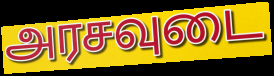
அரசவுடை